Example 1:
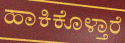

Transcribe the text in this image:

ಹಾಕಿಕೊಳ್ತಾರೆ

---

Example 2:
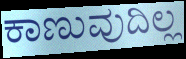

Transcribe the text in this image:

ಕಾಣುವುದಿಲ್ಲ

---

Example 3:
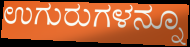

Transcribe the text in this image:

ಉಗುರುಗಳನ್ನೂ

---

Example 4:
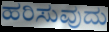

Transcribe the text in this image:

ಹರಿಸುವುದು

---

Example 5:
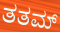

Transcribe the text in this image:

ತತಮ್